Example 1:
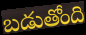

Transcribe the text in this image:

బడుతోంది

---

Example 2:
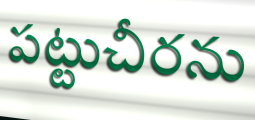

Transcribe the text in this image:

పట్టుచీరను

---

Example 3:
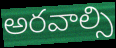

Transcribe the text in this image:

అరవాల్సి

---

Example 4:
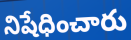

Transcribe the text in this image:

నిషేధించారు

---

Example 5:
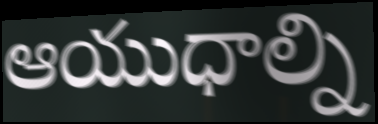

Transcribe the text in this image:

ఆయుధాల్ని